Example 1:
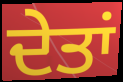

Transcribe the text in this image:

ਦੇਤਾਂ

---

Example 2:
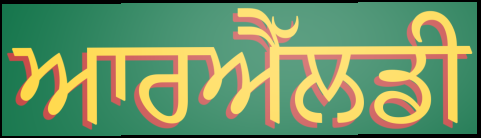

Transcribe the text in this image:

ਆਰਐੱਲਡੀ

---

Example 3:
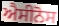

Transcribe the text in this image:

ਐਸੀਨੋਸ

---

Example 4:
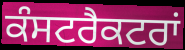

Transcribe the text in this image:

ਕੰਸਟਰੈਕਟਰਾਂ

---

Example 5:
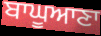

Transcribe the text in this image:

ਬਾਘੂਆਣਾ